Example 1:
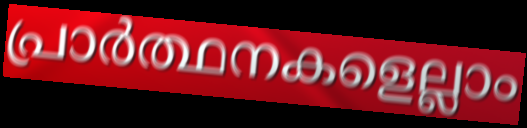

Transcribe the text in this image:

പ്രാർത്ഥനകളെല്ലാം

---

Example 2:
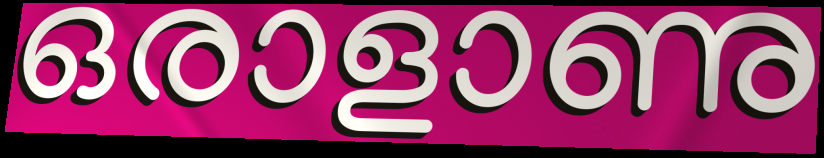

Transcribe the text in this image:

ഒരാളാണു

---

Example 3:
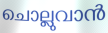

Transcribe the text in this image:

ചൊല്ലുവാൻ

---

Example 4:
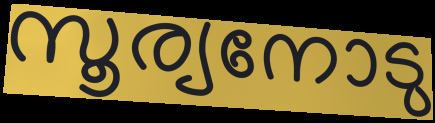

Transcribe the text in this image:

സൂര്യനോടു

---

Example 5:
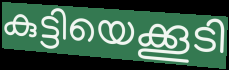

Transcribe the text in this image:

കുട്ടിയെക്കൂടി